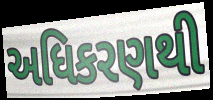
અધિકરણથી